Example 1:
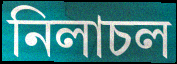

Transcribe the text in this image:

নিলাচল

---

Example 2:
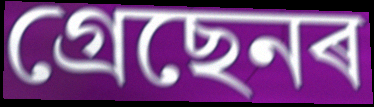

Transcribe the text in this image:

গ্ৰেছেনৰ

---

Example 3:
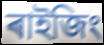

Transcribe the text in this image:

ৰাইজিং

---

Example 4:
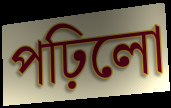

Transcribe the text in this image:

পঢ়িলো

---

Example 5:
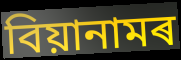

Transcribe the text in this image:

বিয়ানামৰ